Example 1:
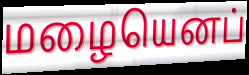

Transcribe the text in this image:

மழையெனப்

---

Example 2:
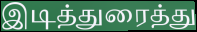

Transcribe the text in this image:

இடித்துரைத்து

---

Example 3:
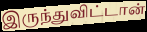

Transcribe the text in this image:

இருந்துவிட்டான்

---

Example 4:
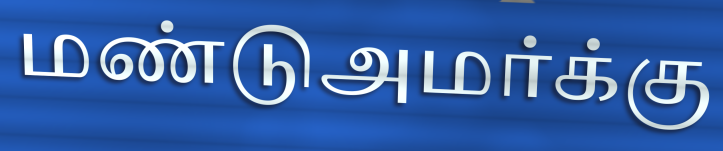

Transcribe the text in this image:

மண்டுஅமர்க்கு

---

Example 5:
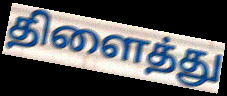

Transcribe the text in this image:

திளைத்து